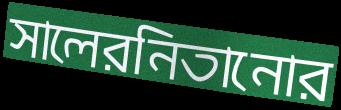
সালেরনিতানোর